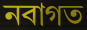
নবাগত